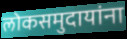
लोकसमुदायांना